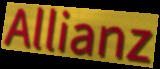
Allianz